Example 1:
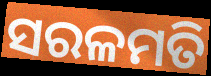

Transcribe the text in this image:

ସରଳମତି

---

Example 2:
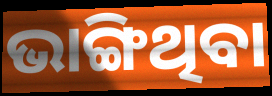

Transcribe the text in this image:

ଭାଙ୍ଗିଥିବା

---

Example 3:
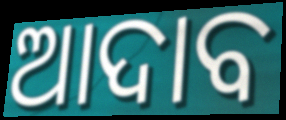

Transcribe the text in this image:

ଆଦାବ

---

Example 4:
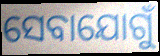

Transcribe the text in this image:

ସେବାଯୋଗୁଁ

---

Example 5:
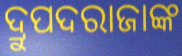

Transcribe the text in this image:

ଦ୍ରୁପଦରାଜାଙ୍କ